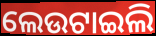
ଲେଉଟାଇଲି